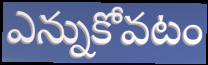
ఎన్నుకోవటం